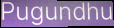
Pugundhu